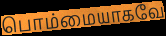
பொம்மையாகவே